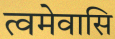
त्वमेवासि